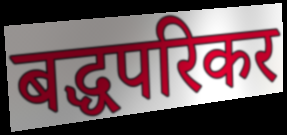
बद्धपरिकर